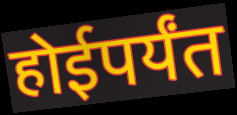
होईपर्यंत